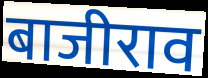
बाजीराव